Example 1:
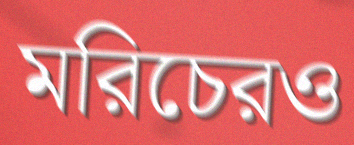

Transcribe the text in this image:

মরিচেরও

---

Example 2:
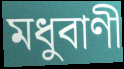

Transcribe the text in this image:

মধুবাণী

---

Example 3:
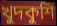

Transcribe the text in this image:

খুদকুশি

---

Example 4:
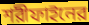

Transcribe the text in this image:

শরীফাইনের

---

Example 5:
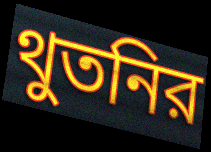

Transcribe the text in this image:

থুতনির